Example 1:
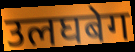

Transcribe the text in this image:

उलघबेग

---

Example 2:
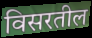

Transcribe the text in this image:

विसरतील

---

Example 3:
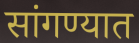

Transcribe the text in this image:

सांगण्यात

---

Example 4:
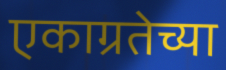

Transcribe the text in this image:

एकाग्रतेच्या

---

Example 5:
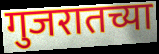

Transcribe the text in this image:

गुजरातच्या